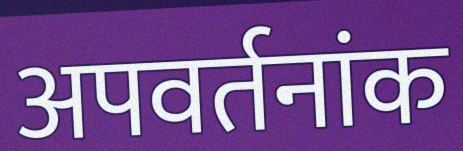
अपवर्तनांक